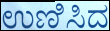
ಉಣಿಸಿದ